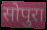
सोपुरा